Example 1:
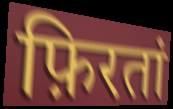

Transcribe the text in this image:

फ़िरतां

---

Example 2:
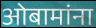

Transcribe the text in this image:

ओबामांना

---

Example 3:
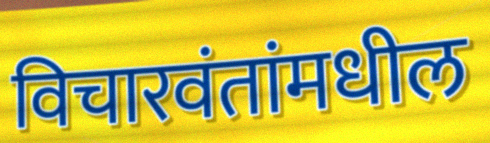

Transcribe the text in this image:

विचारवंतांमधील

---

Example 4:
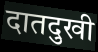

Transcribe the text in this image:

दातदुखी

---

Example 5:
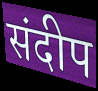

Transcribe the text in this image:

संदीप